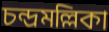
চন্দ্রমল্লিকা